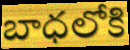
బాధలోకి